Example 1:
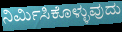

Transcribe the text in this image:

ನಿರ್ಮಿಸಿಕೊಳ್ಳುವುದು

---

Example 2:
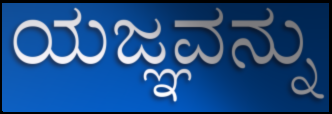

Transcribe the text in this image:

ಯಜ್ಞವನ್ನು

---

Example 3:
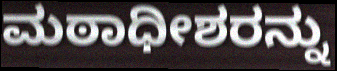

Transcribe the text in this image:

ಮಠಾಧೀಶರನ್ನು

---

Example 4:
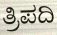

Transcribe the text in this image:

ತ್ರಿಪದಿ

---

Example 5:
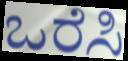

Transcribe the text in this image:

ಒರೆಸಿ